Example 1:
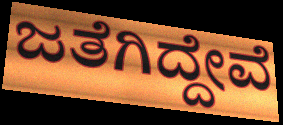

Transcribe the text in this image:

ಜತೆಗಿದ್ದೇವೆ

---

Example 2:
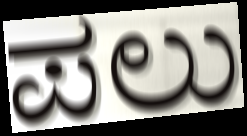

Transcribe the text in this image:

ಪಲು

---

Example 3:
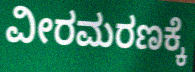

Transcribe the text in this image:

ವೀರಮರಣಕ್ಕೆ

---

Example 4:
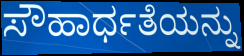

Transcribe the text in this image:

ಸೌಹಾರ್ಧತೆಯನ್ನು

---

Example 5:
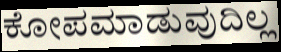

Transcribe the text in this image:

ಕೋಪಮಾಡುವುದಿಲ್ಲ